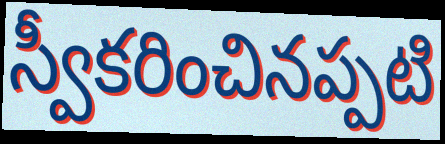
స్వీకరించినప్పటి